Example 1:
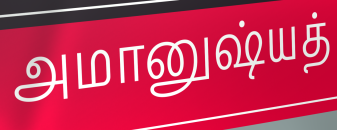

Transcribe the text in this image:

அமானுஷ்யத்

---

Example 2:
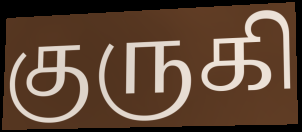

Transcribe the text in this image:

குருகி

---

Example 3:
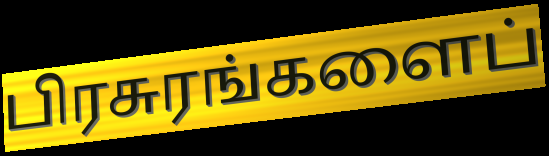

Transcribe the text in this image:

பிரசுரங்களைப்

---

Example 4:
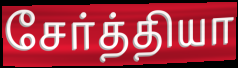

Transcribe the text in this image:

சேர்த்தியா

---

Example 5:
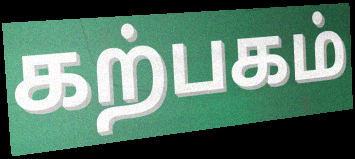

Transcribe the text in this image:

கற்பகம்